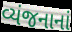
વ્યંજનાનાં